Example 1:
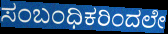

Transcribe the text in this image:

ಸಂಬಂಧಿಕರಿಂದಲೇ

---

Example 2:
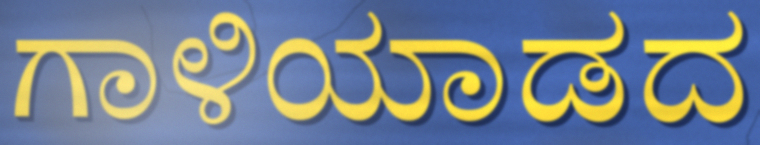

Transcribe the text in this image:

ಗಾಳಿಯಾಡದ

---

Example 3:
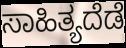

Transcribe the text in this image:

ಸಾಹಿತ್ಯದೆಡೆ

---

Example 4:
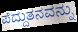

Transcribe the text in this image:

ಪೆದ್ದುತನವನ್ನು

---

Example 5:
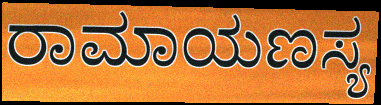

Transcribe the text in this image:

ರಾಮಾಯಣಸ್ಯ